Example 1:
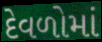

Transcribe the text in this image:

દેવળોમાં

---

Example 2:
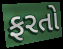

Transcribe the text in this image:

ફરતો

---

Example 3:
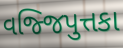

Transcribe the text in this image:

વજ્જિપુત્તકા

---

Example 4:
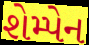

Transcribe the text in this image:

શેમ્પેન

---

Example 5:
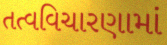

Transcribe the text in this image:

તત્વવિચારણામાં